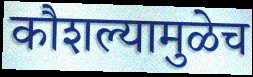
कौशल्यामुळेच